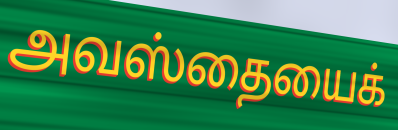
அவஸ்தையைக்